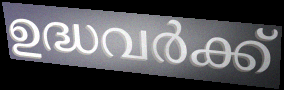
ഉദ്ധവർക്ക്